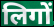
लिगों